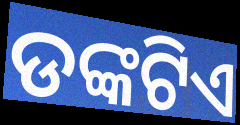
ଡଙ୍କଟିଏ